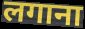
लगाना